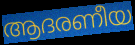
ആദരണീയ